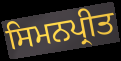
ਸਿਮਨਪ੍ਰੀਤ